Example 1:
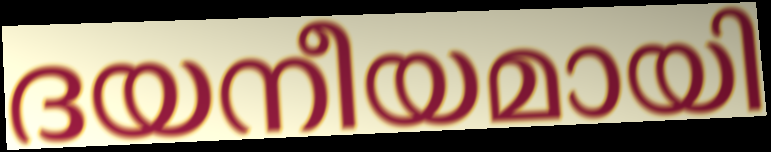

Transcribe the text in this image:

ദയനീയമായി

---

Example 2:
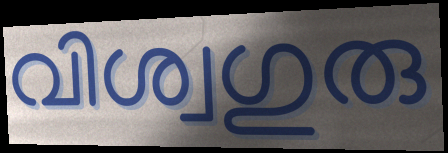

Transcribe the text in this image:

വിശ്വഗുരു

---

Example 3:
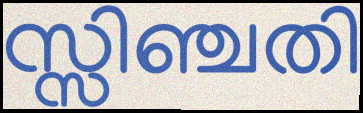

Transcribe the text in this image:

സ്സിഞ്ചതി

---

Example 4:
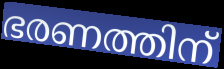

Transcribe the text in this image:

ഭരണത്തിന്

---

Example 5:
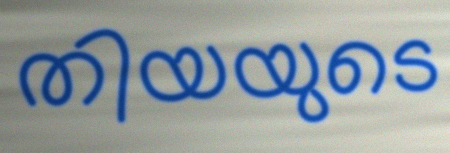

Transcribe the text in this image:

തിയയുടെ